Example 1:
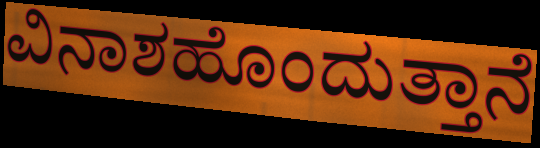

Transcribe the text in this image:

ವಿನಾಶಹೊಂದುತ್ತಾನೆ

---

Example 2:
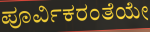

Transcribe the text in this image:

ಪೂರ್ವಿಕರಂತೆಯೇ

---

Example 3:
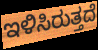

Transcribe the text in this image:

ಇಳಿಸಿರುತ್ತದೆ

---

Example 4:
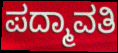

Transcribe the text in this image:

ಪದ್ಮಾವತಿ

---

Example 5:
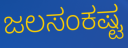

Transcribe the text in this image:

ಜಲಸಂಕಷ್ಟ